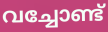
വച്ചോണ്ട്